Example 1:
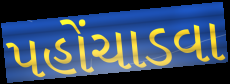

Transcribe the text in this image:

પહોંચાડવા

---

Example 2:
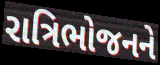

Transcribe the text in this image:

રાત્રિભોજનને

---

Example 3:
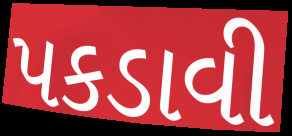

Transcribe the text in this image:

પકડાવી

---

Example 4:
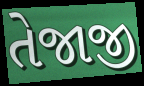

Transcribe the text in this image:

તેજાજી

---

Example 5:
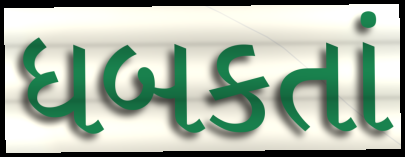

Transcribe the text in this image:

ધબકતાં